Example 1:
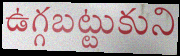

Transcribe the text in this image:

ఉగ్గబట్టుకుని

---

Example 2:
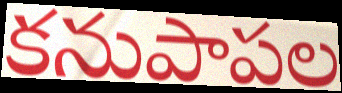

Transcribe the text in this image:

కనుపాపల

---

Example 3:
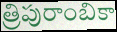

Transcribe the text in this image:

త్రిపురాంబికా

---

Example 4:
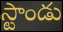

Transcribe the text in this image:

స్టాండు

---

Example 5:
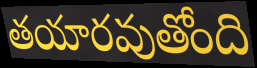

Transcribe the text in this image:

తయారవుతోంది